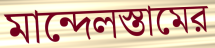
মান্দেলস্তামের